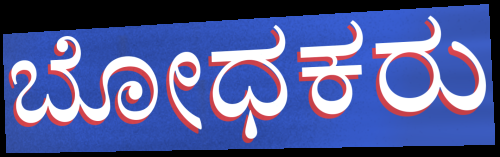
ಬೋಧಕರು